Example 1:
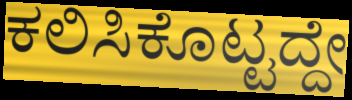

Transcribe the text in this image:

ಕಲಿಸಿಕೊಟ್ಟದ್ದೇ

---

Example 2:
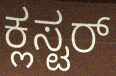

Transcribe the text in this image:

ಕ್ಲಸ್ಟರ್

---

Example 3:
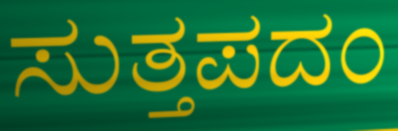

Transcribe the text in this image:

ಸುತ್ತಪದಂ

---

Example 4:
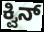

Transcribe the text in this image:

ಕ್ವಿನ್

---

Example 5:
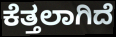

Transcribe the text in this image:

ಕೆತ್ತಲಾಗಿದೆ